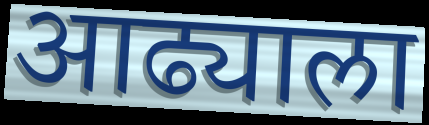
आढ्याला